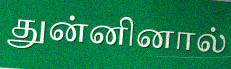
துன்னினால்